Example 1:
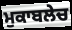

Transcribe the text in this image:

ਮੁਕਾਬਲੇਚ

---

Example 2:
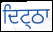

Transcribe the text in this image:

ਦਿਟ੍ਠਾ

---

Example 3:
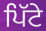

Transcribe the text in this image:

ਪਿੱਟੇ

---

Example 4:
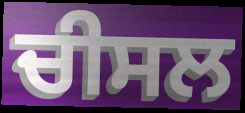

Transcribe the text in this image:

ਚੀਸਲ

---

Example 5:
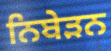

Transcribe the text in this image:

ਨਿਬੇੜਨ